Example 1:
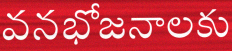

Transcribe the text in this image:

వనభోజనాలకు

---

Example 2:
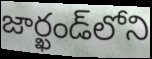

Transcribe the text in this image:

జార్ఖండ్‌లోని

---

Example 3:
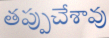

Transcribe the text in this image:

తప్పుచేశావు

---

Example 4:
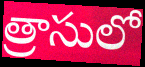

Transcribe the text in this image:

త్రాసులో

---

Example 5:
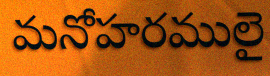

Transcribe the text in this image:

మనోహరములై